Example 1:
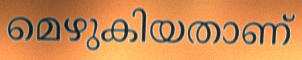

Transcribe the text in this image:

മെഴുകിയതാണ്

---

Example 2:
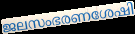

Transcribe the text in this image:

ജലസംഭരണശേഷി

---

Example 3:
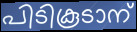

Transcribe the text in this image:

പിടികൂടാന്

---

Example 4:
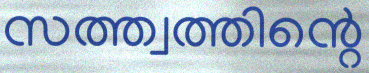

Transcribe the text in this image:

സത്ത്വത്തിന്റെ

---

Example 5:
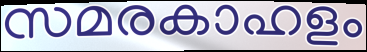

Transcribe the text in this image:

സമരകാഹളം